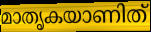
മാതൃകയാണിത്